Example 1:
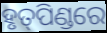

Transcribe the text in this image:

ହୃତ୍‌ପିଣ୍ଡରେ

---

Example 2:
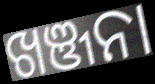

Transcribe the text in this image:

ଖଞ୍ଜନା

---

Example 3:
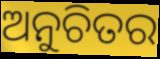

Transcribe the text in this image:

ଅନୁଚିତର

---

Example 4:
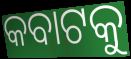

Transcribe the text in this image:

କବାଟକୁ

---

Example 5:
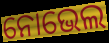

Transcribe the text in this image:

ନୋଭେଲ